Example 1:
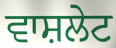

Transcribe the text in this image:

ਵਾਸ਼ਲੇਟ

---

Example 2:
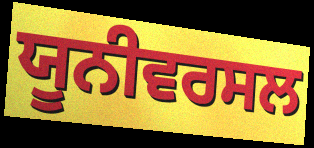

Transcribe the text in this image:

ਯੂਨੀਵਰਸਲ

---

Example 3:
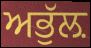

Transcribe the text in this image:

ਅਭੁੱਲ਼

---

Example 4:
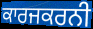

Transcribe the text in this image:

ਕਾਰਜਕਰਨੀ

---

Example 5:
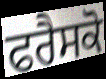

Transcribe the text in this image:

ਫਰੈਸਕੋ